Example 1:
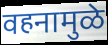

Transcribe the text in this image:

वहनामुळे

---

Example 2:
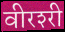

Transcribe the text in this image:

वीरश्री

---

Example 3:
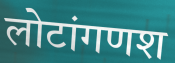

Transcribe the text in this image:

लोटांगणश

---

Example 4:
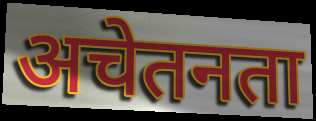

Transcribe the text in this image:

अचेतनता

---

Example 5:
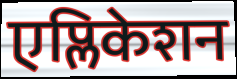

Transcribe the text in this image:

एप्लिकेशन